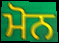
ਮੋਨ